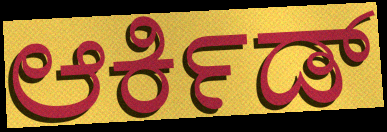
ಆರ್ಕಿಡ್